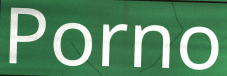
Porno